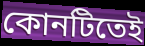
কোনটিতেই